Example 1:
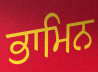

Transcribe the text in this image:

ਭਾਮਿਨ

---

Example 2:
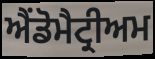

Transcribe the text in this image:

ਐਂਡੋਮੈਟ੍ਰੀਅਮ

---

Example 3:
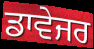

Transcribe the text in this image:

ਡਾਵੇਜਰ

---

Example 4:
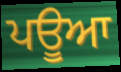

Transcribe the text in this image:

ਪਊਆ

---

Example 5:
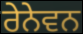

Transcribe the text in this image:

ਰੇਨੇਵਨ